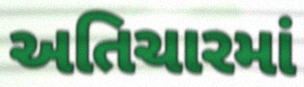
અતિચારમાં